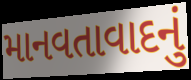
માનવતાવાદનું